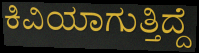
ಕಿವಿಯಾಗುತ್ತಿದ್ದೆ